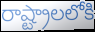
రాష్ట్రాలలోకి